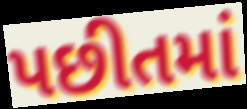
પછીતમાં